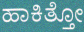
ಹಾಕಿತ್ತೋ